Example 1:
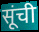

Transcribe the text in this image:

सूंची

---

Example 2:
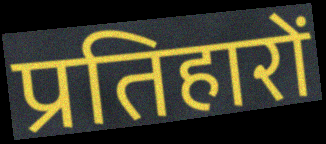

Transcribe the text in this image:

प्रतिहारों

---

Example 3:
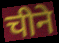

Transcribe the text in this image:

चीने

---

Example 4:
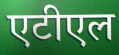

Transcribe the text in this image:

एटीएल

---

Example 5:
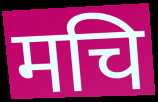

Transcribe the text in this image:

मचि